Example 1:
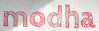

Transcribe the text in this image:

modha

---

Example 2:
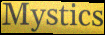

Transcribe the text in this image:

Mystics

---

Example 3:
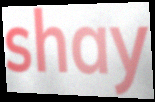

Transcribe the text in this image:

shay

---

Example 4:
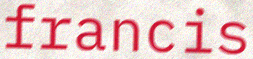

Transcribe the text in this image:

francis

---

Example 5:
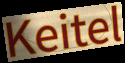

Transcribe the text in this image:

Keitel